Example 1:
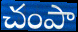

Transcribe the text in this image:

చంపా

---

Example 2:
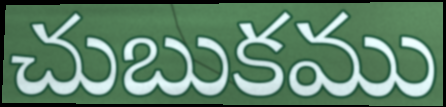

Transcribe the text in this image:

చుబుకము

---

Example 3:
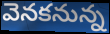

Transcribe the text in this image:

వెనకనున్న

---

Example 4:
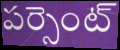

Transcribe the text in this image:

పర్సెంట్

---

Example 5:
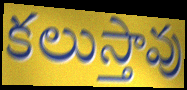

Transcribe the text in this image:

కలుస్తావు